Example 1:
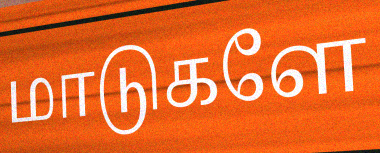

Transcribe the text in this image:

மாடுகளே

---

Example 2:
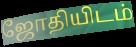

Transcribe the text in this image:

ஜோதியிடம்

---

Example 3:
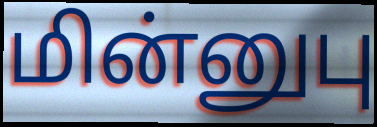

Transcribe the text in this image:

மின்னுபு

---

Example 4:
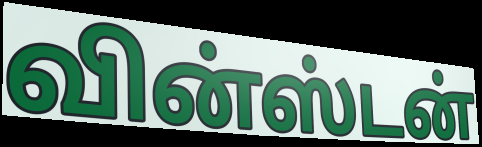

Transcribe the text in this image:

வின்ஸ்டன்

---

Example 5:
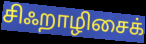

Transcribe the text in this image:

சிஃறாழிசைக்